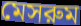
মেসরুম